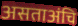
असताअंचि